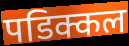
पडिक्कल